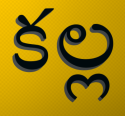
కల్ల